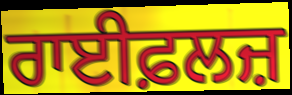
ਰਾਈਫ਼ਲਜ਼